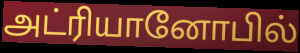
அட்ரியானோபில்